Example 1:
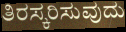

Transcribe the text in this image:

ತಿರಸ್ಕರಿಸುವುದು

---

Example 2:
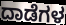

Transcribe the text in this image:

ದಾಡೆಗಳ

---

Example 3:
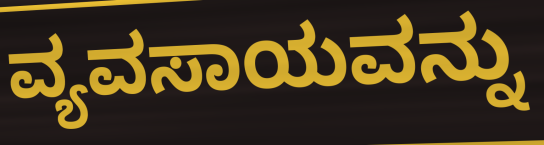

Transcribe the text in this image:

ವ್ಯವಸಾಯವನ್ನು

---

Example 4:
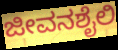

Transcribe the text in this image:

ಜೀವನಶೈಲಿ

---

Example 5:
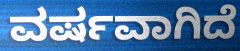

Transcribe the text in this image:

ವರ್ಷವಾಗಿದೆ